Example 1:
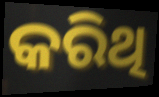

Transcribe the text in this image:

କରିଥି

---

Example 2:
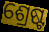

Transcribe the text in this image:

ଶ୍ରେଷ୍ଟ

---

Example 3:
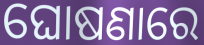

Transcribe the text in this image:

ଘୋଷଣାରେ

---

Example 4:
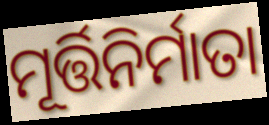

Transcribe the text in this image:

ମୂର୍ତ୍ତିନିର୍ମାତା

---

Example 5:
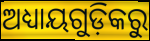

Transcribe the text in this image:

ଅଧ୍ୟାୟଗୁଡ଼ିକରୁ